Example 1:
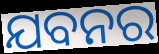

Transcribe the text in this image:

ଯବନର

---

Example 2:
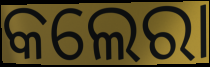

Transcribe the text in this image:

କଲେରା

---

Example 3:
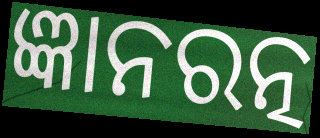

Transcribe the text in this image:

ଜ୍ଞାନରତ୍ନ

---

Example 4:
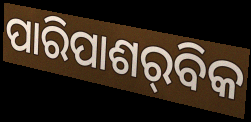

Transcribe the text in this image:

ପାରିପାଶର୍‌ବିକ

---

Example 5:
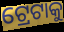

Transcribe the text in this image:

ଟ୍ରେଟାକୁ